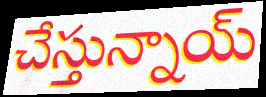
చేస్తున్నాయ్